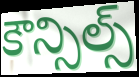
కౌన్సిల్స్